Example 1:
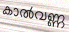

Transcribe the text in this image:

കാൽവണ്ണ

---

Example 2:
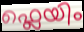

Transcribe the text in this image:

ഫ്ലെയിം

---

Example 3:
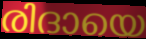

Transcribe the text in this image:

രിദായെ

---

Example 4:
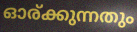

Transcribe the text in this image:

ഓര്ക്കുന്നതും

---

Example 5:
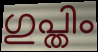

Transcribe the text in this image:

ഗുപ്തിം